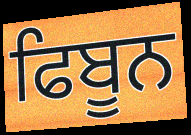
ਫਿਬੂਨ